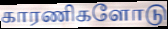
காரணிகளோடு